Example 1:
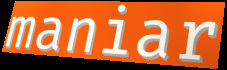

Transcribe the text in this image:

maniar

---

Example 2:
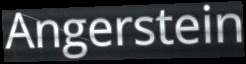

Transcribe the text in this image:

Angerstein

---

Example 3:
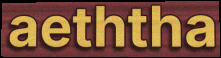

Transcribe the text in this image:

aeththa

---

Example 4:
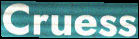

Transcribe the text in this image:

Cruess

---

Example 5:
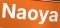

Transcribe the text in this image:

Naoya